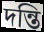
দন্তি